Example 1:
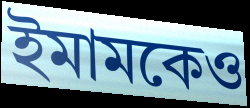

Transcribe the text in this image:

ইমামকেও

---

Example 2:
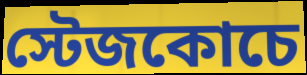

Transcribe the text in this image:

স্টেজকোচে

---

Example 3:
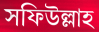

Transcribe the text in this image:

সফিউল্লাহ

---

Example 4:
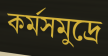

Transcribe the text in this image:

কর্মসমুদ্রে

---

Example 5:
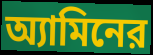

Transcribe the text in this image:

অ্যামিনের